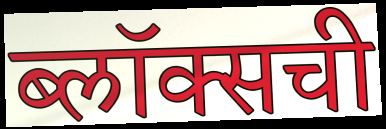
ब्लॉक्सची